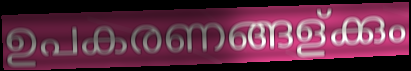
ഉപകരണങ്ങള്ക്കും